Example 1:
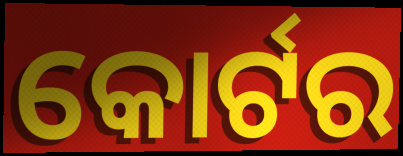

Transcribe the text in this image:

କୋର୍ଟର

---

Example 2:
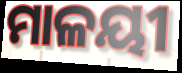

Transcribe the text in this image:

ମାଳୟୀ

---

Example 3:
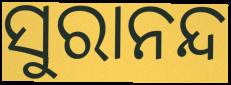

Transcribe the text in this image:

ସୁରାନନ୍ଦ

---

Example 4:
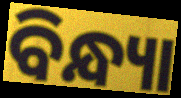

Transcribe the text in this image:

ବିନ୍ଧ୍ୟା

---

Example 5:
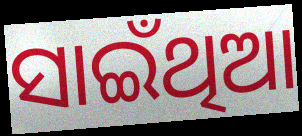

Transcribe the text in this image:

ସାଇଁଥିଆ